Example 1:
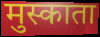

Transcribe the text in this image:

मुस्काता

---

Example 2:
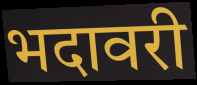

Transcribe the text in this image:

भदावरी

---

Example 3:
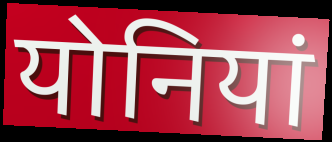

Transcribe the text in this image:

योनियां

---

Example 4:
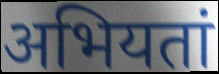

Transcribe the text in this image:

अभियतां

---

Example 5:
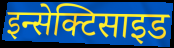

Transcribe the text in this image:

इन्सेक्टिसाइड